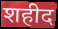
शहीद